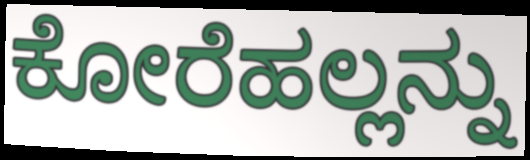
ಕೋರೆಹಲ್ಲನ್ನು